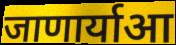
जाणार्याआ